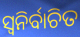
ସ୍ୱନିର୍ବାଚିତ